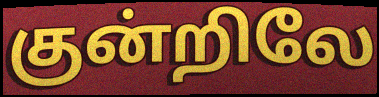
குன்றிலே